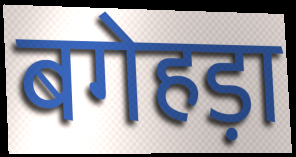
बगेहड़ा